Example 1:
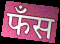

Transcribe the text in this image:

फँस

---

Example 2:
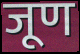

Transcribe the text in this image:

जूण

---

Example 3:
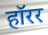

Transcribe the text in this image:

हॉरर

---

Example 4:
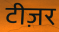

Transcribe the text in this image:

टीज़र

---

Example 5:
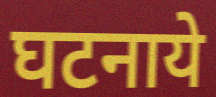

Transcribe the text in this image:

घटनाये